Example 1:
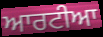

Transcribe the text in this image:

ਆਰਟੀਆ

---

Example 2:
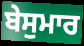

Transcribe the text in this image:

ਬੇਸੁਮਾਰ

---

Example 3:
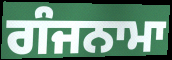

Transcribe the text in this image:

ਗੰਜਨਾਮਾ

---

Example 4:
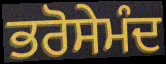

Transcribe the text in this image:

ਭਰੋਸੇਮੰਦ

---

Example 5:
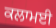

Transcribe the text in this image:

ਕਲਾਮਈ